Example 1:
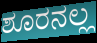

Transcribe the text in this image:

ಶೂರನಲ್ಲ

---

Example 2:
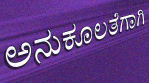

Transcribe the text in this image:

ಅನುಕೂಲತೆಗಾಗಿ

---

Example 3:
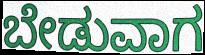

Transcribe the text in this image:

ಬೇಡುವಾಗ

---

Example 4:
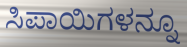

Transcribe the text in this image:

ಸಿಪಾಯಿಗಳನ್ನೂ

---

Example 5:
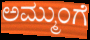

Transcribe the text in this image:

ಅಮ್ಮುಂಗೆ